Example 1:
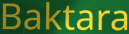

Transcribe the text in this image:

Baktara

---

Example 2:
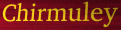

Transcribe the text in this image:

Chirmuley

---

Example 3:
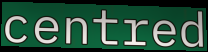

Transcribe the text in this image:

centred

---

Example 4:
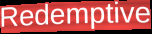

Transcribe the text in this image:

Redemptive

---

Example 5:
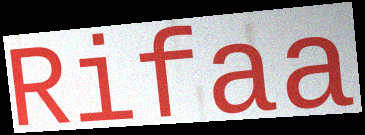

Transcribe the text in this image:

Rifaa